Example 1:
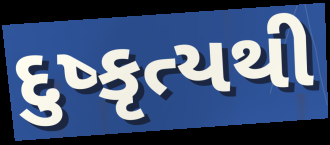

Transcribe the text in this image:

દુષ્કૃત્યથી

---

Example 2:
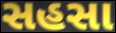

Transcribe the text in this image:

સહસા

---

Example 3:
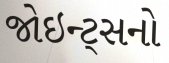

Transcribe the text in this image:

જોઇન્ટ્સનો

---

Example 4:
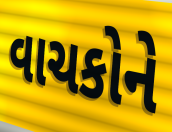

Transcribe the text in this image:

વાચકોને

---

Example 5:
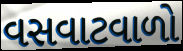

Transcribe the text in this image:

વસવાટવાળો